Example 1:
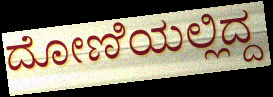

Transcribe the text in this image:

ದೋಣಿಯಲ್ಲಿದ್ದ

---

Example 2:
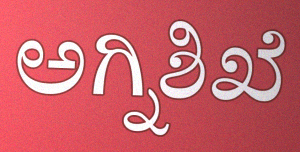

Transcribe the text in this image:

ಅಗ್ನಿಶಿಖೆ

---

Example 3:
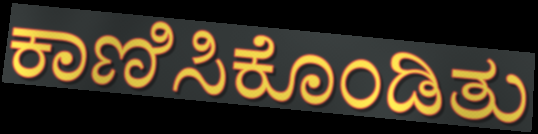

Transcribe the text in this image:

ಕಾಣಿಸಿಕೊಂಡಿತು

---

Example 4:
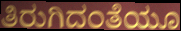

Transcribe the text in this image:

ತಿರುಗಿದಂತೆಯೂ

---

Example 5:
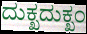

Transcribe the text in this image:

ದುಕ್ಖದುಕ್ಖಂ